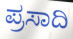
ಪ್ರಸಾದಿ